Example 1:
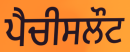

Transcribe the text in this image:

ਪੈਚੀਸਲੌਟ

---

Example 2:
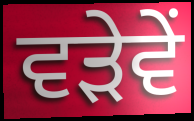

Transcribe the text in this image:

ਵੜੇਵੇਂ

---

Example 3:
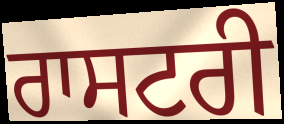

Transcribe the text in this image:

ਰਾਸਟਰੀ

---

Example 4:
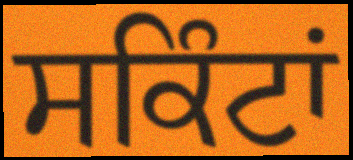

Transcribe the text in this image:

ਸਕਿੰਟਾਂ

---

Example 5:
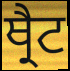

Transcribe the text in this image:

ਥ੍ਰੈਟ